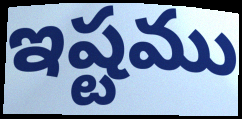
ఇష్టము